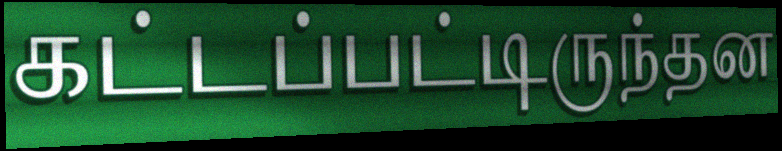
கட்டப்பட்டிருந்தன